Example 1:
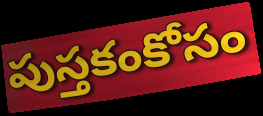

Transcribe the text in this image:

పుస్తకంకోసం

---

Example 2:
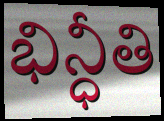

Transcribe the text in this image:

భిన్ధీతి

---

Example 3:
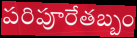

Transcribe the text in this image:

పరిపూరేతబ్బం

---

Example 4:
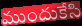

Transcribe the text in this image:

ముందుకేసి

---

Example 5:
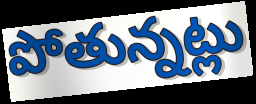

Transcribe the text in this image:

పోతున్నట్లు